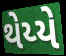
થેય્યે